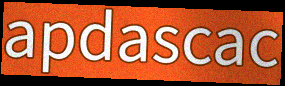
apdascac